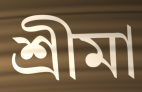
শ্রীমা